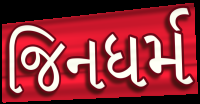
જિનધર્મ